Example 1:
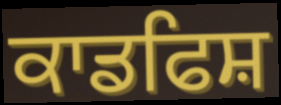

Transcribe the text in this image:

ਕਾਡਫਿਸ਼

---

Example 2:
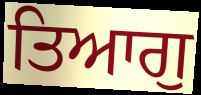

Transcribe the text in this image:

ਤਿਆਗੁ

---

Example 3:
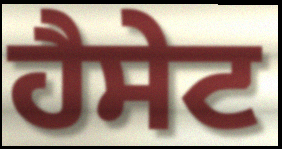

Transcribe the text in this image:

ਹੈਸੇਟ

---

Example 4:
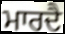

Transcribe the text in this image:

ਮਾਰਦੈ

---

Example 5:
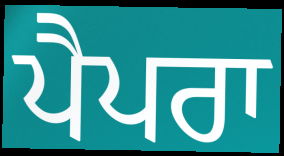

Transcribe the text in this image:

ਪੈਪਰਾ